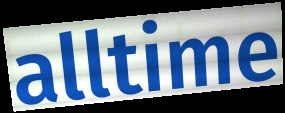
alltime